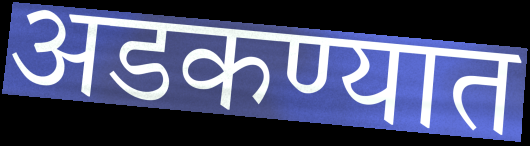
अडकण्यात